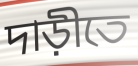
দাড়ীতে